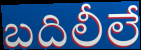
బదిలీలే